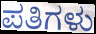
ಪತಿಗಳು